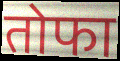
तोफा